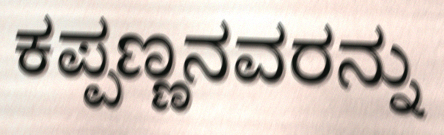
ಕಪ್ಪಣ್ಣನವರನ್ನು